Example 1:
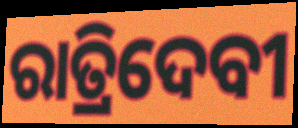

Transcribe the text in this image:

ରାତ୍ରିଦେବୀ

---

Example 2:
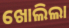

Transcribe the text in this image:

ଖୋଲିଲା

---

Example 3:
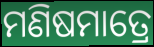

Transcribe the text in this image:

ମଣିଷମାତ୍ରେ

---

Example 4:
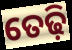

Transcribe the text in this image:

ତେଢ଼ି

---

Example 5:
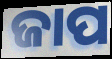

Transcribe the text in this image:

ଜାପ